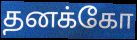
தனக்கோ